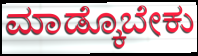
ಮಾಡ್ಕೊಬೇಕು